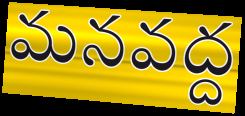
మనవద్ద